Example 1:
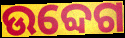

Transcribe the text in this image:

ଉବ୍ଦେଗ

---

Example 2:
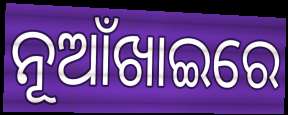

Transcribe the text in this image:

ନୂଆଁଖାଇରେ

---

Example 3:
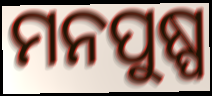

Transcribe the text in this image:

ମନପୁଷ୍ପ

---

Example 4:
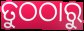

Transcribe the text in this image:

ତୁଠଠାରୁ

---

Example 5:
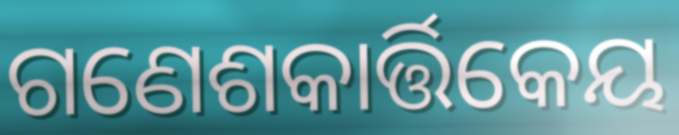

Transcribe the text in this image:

ଗଣେଶକାର୍ତ୍ତିକେୟ